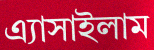
এ্যাসাইলাম